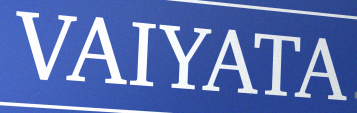
VAIYATA